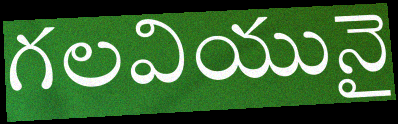
గలవియునై